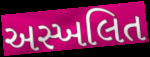
અસ્ખલિત